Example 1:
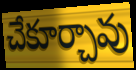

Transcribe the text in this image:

చేకూర్చావు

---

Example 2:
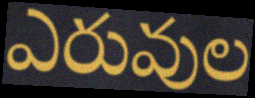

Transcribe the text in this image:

ఎరువుల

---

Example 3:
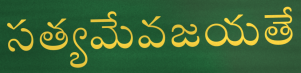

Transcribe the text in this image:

సత్యమేవజయతే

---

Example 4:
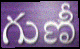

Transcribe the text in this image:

గుణీ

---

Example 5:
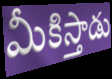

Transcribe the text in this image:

మీకిస్తాడు